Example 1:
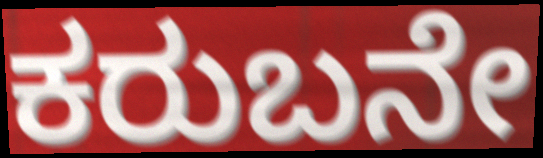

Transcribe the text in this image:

ಕರುಬನೇ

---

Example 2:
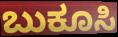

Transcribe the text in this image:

ಬುಕೂಸಿ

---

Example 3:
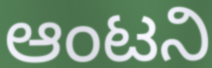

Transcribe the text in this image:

ಆಂಟನಿ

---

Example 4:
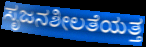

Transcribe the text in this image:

ಸೃಜನಶೀಲತೆಯತ್ತ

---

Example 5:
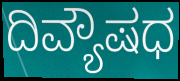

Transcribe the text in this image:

ದಿವ್ಯೌಷಧ